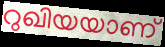
റുഖിയയാണ്